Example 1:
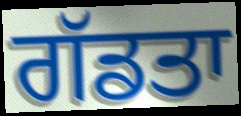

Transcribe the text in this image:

ਗੱਡਤਾ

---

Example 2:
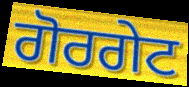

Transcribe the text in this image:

ਗੋਰਗੇਟ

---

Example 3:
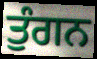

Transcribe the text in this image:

ਤੁੰਗਨ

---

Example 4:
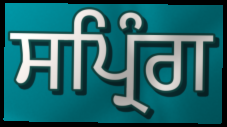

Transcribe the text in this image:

ਸਪ੍ਰਿੰਗ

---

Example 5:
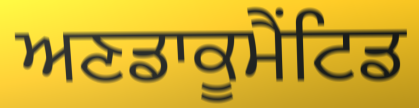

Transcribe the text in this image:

ਅਣਡਾਕੂਮੈਂਟਿਡ